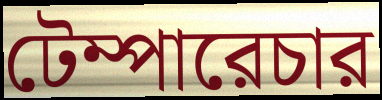
টেম্পারেচার